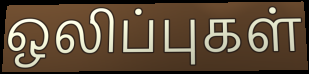
ஒலிப்புகள்